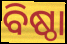
ବିଷ୍ଠା